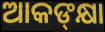
ଆକଙ୍‌କ୍ଷା